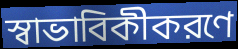
স্বাভাবিকীকরণে